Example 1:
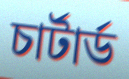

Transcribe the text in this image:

চার্টার্ড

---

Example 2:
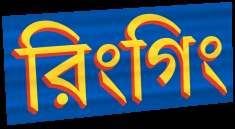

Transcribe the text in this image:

রিংগিং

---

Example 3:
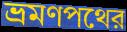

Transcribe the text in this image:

ভ্রমণপথের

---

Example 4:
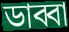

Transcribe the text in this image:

ডাব্বা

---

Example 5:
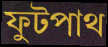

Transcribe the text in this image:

ফুটপাথ